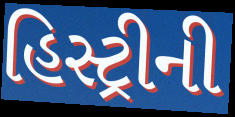
હિસ્ટ્રીની